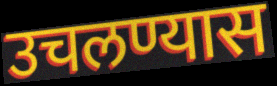
उचलण्यास